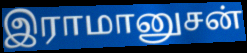
இராமானுசன்